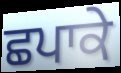
ਛਪਾਕੇ